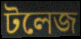
টলেজ